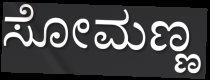
ಸೋಮಣ್ಣ